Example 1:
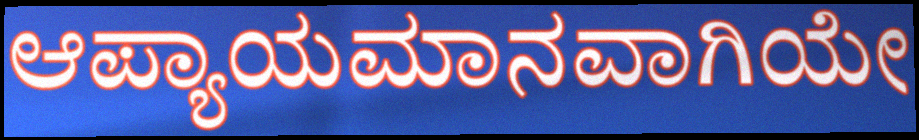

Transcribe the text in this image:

ಆಪ್ಯಾಯಮಾನವಾಗಿಯೇ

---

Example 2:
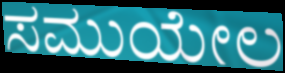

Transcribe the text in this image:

ಸಮುಯೇಲ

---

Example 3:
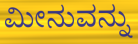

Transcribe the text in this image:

ಮೀನುವನ್ನು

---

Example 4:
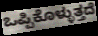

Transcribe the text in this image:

ಒಪ್ಪಿಕೊಳ್ಳುತ್ತದೆ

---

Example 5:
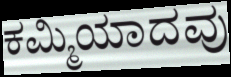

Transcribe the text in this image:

ಕಮ್ಮಿಯಾದವು